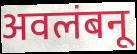
अवलंबनू